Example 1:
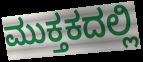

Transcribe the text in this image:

ಮುಕ್ತಕದಲ್ಲಿ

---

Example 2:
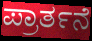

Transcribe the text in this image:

ಪ್ರಾರ್ತನೆ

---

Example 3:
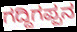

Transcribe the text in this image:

ಗದ್ದಿಗಪ್ಪನ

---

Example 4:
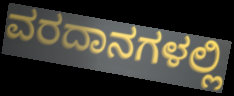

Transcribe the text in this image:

ವರದಾನಗಳಲ್ಲಿ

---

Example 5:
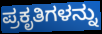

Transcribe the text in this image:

ಪ್ರಕೃತಿಗಳನ್ನು